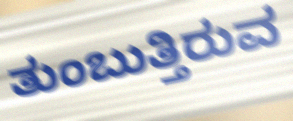
ತುಂಬುತ್ತಿರುವ